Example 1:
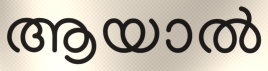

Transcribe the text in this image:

ആയാൽ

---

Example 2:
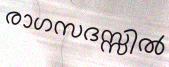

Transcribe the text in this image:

രാഗസദസ്സിൽ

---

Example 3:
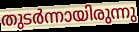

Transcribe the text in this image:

തുടർന്നായിരുന്നു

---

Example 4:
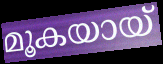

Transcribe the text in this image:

മൂകയായ്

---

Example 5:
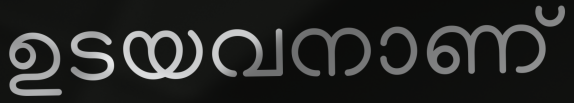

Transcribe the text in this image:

ഉടയവനാണ്